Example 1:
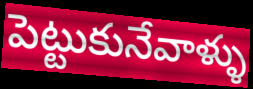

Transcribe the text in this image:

పెట్టుకునేవాళ్ళు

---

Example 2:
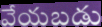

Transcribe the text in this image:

వేయబడు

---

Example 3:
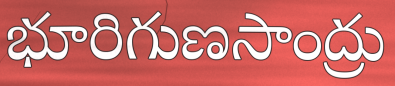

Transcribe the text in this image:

భూరిగుణసాంద్రు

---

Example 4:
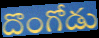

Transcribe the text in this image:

దొంగోడు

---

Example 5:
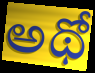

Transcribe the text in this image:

అథో